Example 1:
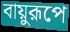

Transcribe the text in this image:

বায়ুরূপে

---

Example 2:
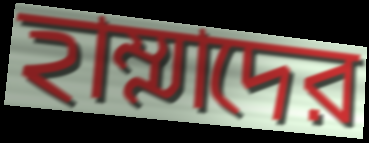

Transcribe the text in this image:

হাম্মাদের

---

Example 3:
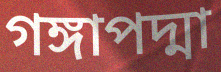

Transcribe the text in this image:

গঙ্গাপদ্মা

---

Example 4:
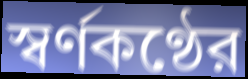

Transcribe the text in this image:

স্বর্ণকণ্ঠের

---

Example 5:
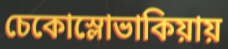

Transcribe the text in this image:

চেকোস্লোভাকিয়ায়